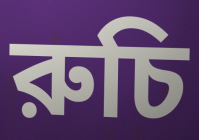
রুচি